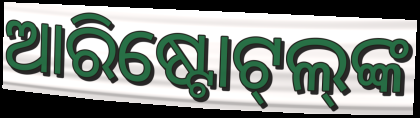
ଆରିଷ୍ଟୋଟ୍‌ଲ୍‌ଙ୍କ